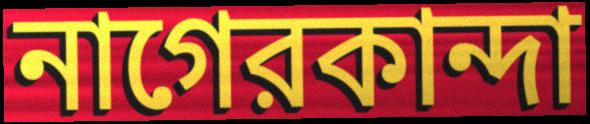
নাগেরকান্দা